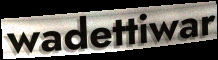
wadettiwar